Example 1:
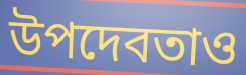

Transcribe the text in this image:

উপদেবতাও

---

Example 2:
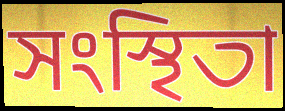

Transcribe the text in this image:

সংস্থিতা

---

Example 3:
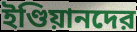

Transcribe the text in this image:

ইণ্ডিয়ানদের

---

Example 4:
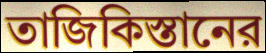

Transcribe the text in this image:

তাজিকিস্তানের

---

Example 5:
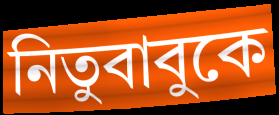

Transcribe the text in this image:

নিতুবাবুকে